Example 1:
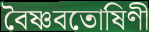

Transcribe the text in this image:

বৈষ্ণবতোষিণী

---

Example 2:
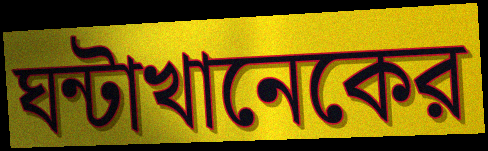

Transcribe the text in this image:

ঘন্টাখানেকের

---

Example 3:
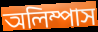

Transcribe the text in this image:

অলিম্পাস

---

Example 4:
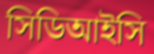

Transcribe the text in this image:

সিডিআইসি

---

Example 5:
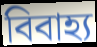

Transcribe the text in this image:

বিবাহ্য